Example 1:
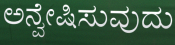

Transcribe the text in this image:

ಅನ್ವೇಷಿಸುವುದು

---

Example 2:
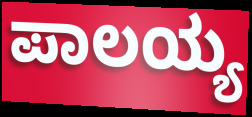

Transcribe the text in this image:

ಪಾಲಯ್ಯ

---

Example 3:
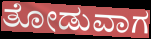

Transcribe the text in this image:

ತೋಡುವಾಗ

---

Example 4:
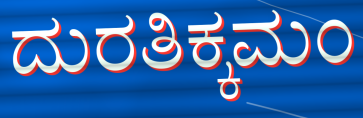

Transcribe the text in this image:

ದುರತಿಕ್ಕಮಂ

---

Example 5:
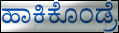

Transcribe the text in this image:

ಹಾಕಿಕೊಂಡ್ರೆ